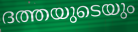
ദത്തയുടെയും